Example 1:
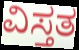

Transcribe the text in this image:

ವಿಸ್ತತ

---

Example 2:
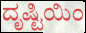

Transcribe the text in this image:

ದೃಷ್ಟಿಯಿಂ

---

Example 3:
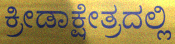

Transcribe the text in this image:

ಕ್ರೀಡಾಕ್ಷೇತ್ರದಲ್ಲಿ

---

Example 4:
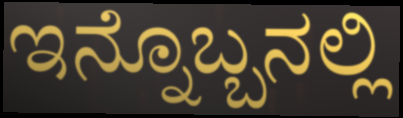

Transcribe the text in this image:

ಇನ್ನೊಬ್ಬನಲ್ಲಿ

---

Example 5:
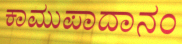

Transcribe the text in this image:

ಕಾಮುಪಾದಾನಂ